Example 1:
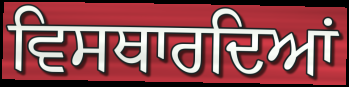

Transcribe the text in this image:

ਵਿਸਥਾਰਦਿਆਂ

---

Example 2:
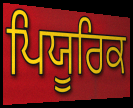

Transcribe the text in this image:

ਪਿਯੂਰਿਕ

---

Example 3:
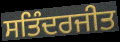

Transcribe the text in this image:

ਸਤਿੰਦਰਜੀਤ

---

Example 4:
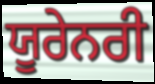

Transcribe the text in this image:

ਯੂਰੇਨਰੀ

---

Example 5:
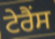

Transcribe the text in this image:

ਟੇਰੈਂਸ